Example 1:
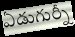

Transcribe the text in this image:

ఏడుగుర్నీ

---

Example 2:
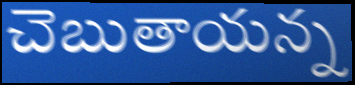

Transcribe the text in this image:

చెబుతాయన్న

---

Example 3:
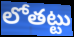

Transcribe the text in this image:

లోతట్టు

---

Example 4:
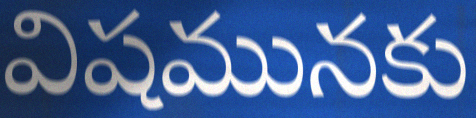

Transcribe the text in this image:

విషమునకు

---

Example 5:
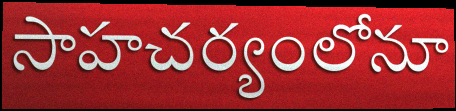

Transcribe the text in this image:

సాహచర్యంలోనూ